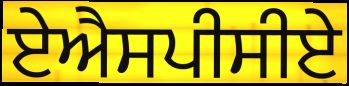
ਏਐਸਪੀਸੀਏ